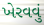
ખેરવવું